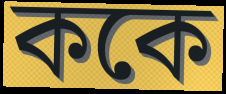
ককে